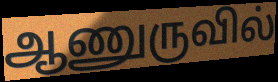
ஆணுருவில்